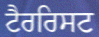
ਟੈਰਰਿਸਟ